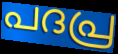
പദപ്ര